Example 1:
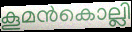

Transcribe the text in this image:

കൂമൻകൊല്ലി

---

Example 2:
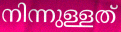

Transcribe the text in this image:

നിന്നുള്ളത്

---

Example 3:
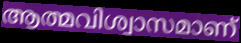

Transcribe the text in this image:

ആത്മവിശ്വാസമാണ്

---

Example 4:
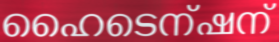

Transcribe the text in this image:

ഹൈടെന്ഷന്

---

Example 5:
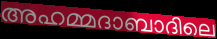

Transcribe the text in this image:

അഹമ്മദാബാദിലെ